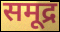
समूद्र